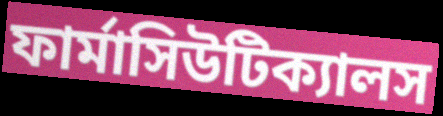
ফার্মাসিউটিক্যালস